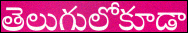
తెలుగులోకూడా